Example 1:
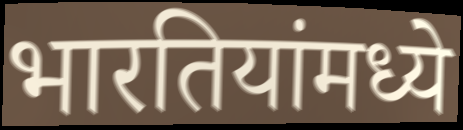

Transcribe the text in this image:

भारतियांमध्ये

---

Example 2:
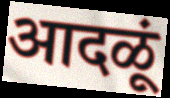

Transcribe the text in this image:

आदळूं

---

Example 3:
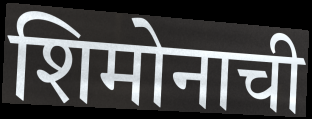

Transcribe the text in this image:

शिमोनाची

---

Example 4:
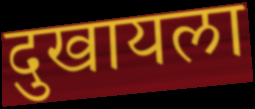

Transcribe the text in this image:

दुखायला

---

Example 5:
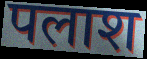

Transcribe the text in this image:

पलाश